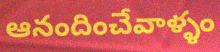
ఆనందించేవాళ్ళం